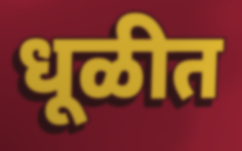
धूळीत